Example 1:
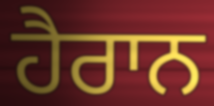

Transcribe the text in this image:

ਹੈਰਾਨ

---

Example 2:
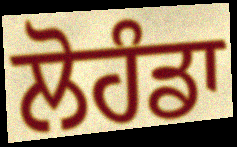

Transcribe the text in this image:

ਲੋਹੰਡਾ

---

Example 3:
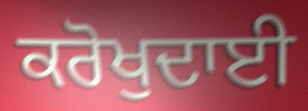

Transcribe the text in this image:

ਕਰੋਖੁਦਾਈ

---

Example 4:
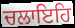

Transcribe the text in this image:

ਚਲਾਇਹਿ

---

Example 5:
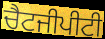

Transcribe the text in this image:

ਚੈਟਜੀਪੀਟੀ